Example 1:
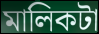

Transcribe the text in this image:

মালিকটা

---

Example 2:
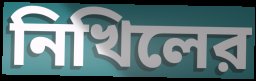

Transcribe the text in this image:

নিখিলের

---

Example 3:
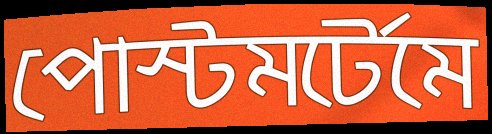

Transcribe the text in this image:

পোস্টমর্টেমে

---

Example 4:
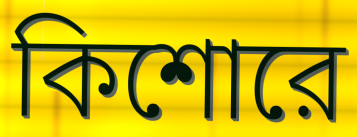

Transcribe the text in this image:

কিশোরে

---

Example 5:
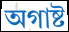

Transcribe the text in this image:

অগাষ্ট